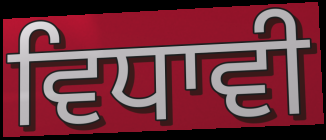
ਵਿਧਾਵੀ